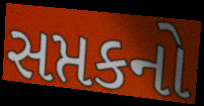
સપ્તકનો